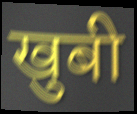
खुबी